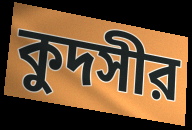
কুদসীর